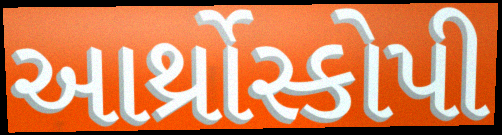
આર્થ્રોસ્કોપી